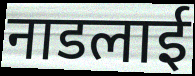
नाडलाई